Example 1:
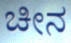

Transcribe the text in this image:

ಚೀನ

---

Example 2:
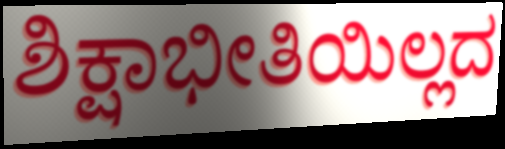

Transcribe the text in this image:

ಶಿಕ್ಷಾಭೀತಿಯಿಲ್ಲದ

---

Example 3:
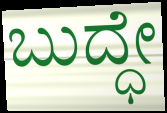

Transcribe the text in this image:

ಬುದ್ಧೇ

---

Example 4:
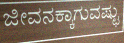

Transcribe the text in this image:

ಜೀವನಕ್ಕಾಗುವಷ್ಟು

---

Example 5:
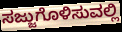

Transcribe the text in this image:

ಸಜ್ಜುಗೊಳಿಸುವಲ್ಲಿ